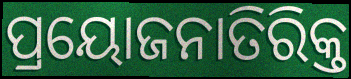
ପ୍ରୟୋଜନାତିରିକ୍ତ